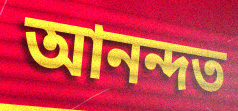
আনন্দত